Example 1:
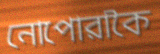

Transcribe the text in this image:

নোপোৱাকৈ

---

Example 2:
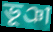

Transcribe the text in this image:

ভূঞা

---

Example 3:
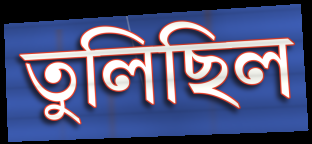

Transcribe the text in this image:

তুলিছিল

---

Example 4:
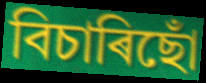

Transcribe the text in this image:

বিচাৰিছোঁ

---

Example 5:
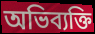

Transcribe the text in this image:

অভিব্যক্তি